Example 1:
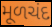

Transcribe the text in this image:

મૂળચંદ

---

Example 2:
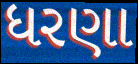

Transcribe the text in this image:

ધરણા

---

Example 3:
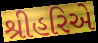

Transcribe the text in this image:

શ્રીહરિએ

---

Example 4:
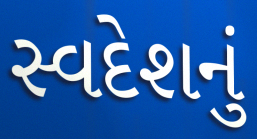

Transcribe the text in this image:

સ્વદેશનું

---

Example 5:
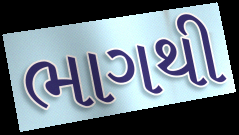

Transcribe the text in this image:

ભાગથી